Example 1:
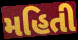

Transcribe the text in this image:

મહિતી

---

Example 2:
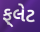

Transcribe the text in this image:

ફ્‌લેટ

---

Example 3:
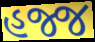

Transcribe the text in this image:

હજ્જ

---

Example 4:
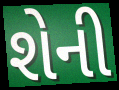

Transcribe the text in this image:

શેની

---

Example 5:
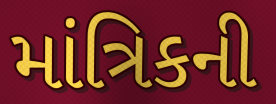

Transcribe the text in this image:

માંત્રિકની